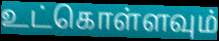
உட்கொள்ளவும்